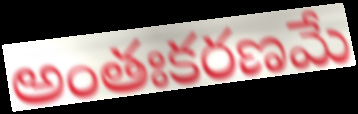
అంతఃకరణమే